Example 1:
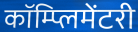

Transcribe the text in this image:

कॉम्प्लिमेंटरी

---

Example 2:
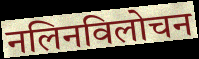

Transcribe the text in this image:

नलिनविलोचन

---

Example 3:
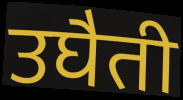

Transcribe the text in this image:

उघैती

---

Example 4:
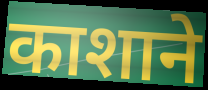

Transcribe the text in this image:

काशाने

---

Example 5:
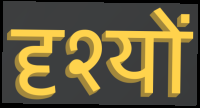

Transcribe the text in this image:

दृश्यों